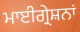
ਮਾਈਗ੍ਰੇਸ਼ਨਾਂ